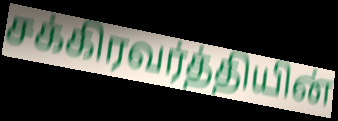
சக்கிரவர்த்தியின்